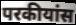
परकीयांस